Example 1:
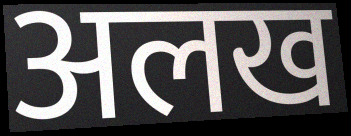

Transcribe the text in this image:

अलख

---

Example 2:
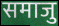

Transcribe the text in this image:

समाजु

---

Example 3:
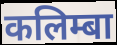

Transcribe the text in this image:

कलिम्बा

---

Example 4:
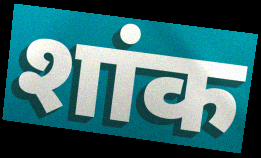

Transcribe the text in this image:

शांक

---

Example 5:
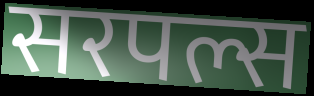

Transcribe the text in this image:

सरपल्स